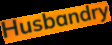
Husbandry